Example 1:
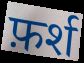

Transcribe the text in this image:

फ़र्श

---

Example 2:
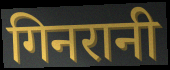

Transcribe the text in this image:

गिनरानी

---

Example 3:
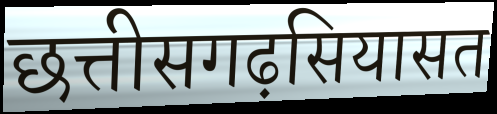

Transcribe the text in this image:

छत्तीसगढ़सियासत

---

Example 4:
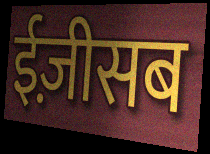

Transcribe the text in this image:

ईज़ीसब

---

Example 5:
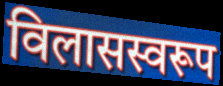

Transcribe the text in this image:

विलासस्वरूप